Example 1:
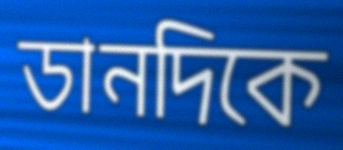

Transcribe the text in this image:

ডানদিকে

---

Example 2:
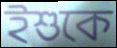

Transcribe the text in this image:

ইশুকে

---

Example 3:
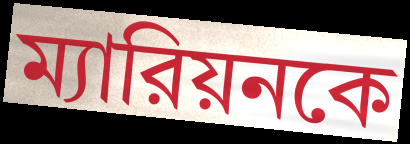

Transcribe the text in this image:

ম্যারিয়নকে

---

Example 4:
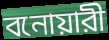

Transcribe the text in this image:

বনোয়ারী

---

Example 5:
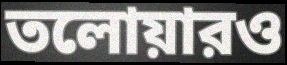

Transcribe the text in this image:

তলোয়ারও